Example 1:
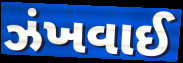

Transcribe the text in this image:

ઝંખવાઈ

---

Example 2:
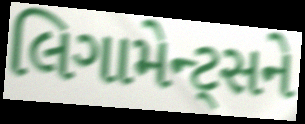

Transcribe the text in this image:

લિગામેન્ટ્સને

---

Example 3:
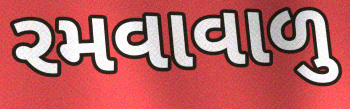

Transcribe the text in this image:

રમવાવાળુ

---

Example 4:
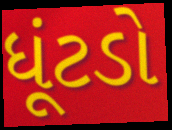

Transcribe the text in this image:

ધૂંટડો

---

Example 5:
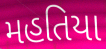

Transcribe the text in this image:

મહતિયા